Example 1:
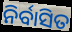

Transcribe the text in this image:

ନିର୍ବାସିତ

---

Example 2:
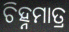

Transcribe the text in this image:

ଚିହ୍ନମାତ୍ର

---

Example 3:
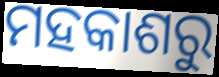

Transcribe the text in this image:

ମହକାଶରୁ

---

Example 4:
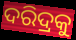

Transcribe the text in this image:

ଦରିଦ୍ରକୁ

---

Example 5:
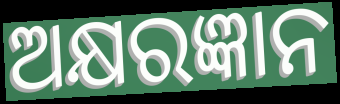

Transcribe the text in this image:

ଅକ୍ଷରଜ୍ଞାନ